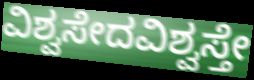
ವಿಶ್ವಸೇದವಿಶ್ವಸ್ತೇ